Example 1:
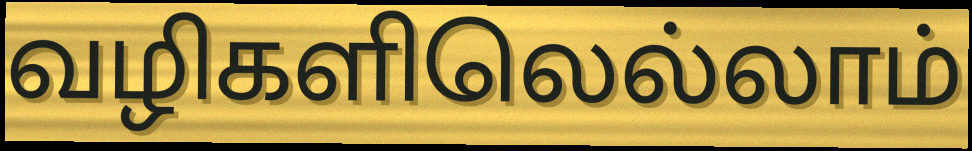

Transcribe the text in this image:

வழிகளிலெல்லாம்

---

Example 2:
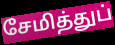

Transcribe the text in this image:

சேமித்துப்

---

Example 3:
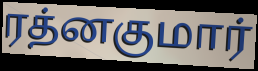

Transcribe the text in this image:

ரத்னகுமார்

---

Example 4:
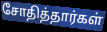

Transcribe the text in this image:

சோதித்தார்கள்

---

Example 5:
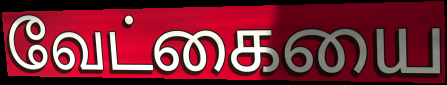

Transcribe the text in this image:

வேட்கையை